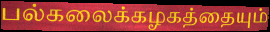
பல்கலைக்கழகத்தையும்